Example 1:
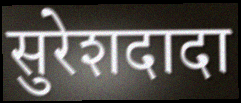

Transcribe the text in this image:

सुरेशदादा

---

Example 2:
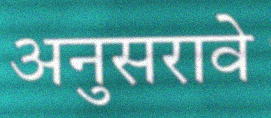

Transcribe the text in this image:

अनुसरावे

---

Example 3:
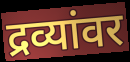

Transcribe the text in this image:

द्रव्यांवर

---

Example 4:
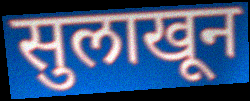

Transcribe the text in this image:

सुलाखून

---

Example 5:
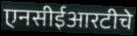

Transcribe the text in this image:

एनसीईआरटीचे